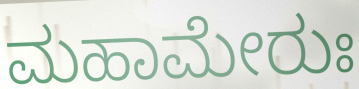
ಮಹಾಮೇರುಃ